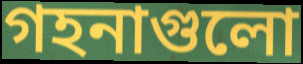
গহনাগুলো